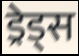
ड्रेड्स